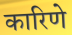
कारिणे